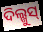
ଦିଲ୍ଖୁସ୍